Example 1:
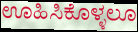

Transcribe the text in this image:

ಊಹಿಸಿಕೊಳ್ಳಲೂ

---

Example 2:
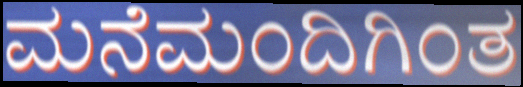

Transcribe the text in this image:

ಮನೆಮಂದಿಗಿಂತ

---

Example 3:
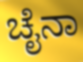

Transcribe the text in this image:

ಚೈನಾ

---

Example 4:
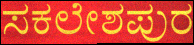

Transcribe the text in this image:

ಸಕಲೇಶಪುರ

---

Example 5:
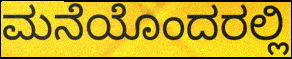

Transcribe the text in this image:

ಮನೆಯೊಂದರಲ್ಲಿ